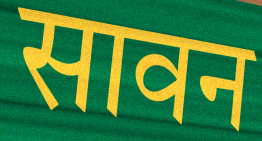
सावन